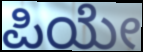
ಪಿಯೇ